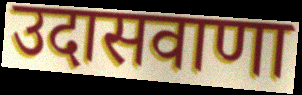
उदासवाणा